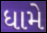
ધામે